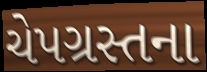
ચેપગ્રસ્તના